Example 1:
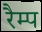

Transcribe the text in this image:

रैम्प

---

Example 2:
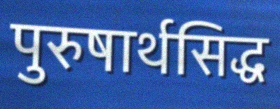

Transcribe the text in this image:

पुरुषार्थसिद्ध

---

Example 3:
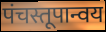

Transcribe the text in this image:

पंचस्तूपान्वय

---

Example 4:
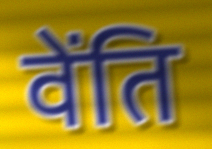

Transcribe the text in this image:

वेंति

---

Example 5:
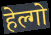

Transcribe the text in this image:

हेल्गो